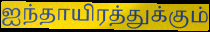
ஐந்தாயிரத்துக்கும்